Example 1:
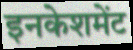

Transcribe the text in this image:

इनकेशमेंट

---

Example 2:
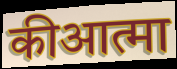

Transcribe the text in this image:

कीआत्मा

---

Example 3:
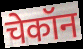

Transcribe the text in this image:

चेकॉन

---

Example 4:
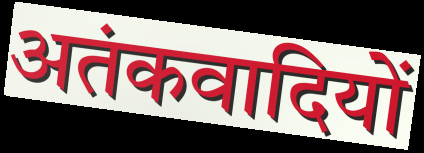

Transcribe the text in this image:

अतंकवादियों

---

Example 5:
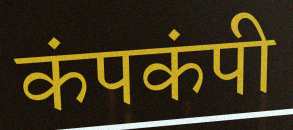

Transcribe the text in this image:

कंपकंपी